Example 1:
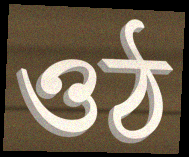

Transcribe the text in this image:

ওঠ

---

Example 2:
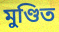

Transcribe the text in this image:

মুণ্ডিত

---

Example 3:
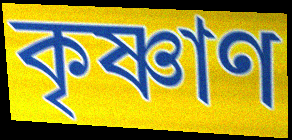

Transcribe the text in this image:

কৃষ্ণাণ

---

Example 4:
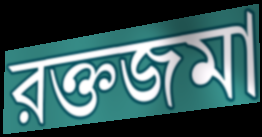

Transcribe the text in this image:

রক্তজমা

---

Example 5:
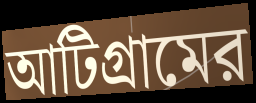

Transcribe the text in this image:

আটিগ্রামের